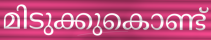
മിടുക്കുകൊണ്ട്